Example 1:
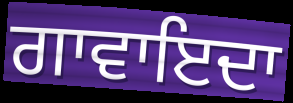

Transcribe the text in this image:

ਗਾਵਾਇਦਾ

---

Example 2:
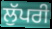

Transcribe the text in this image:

ਲੁੱਪਰੀ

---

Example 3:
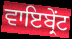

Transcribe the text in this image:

ਵਾਇਬ੍ਰੇਂਟ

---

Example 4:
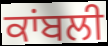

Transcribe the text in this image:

ਕਾਂਬਲੀ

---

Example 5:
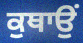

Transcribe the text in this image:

ਕੁਥਾਉਂ